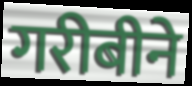
गरीबीने